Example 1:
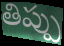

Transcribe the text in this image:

తిప్పు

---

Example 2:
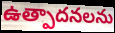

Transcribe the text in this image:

ఉత్పాదనలను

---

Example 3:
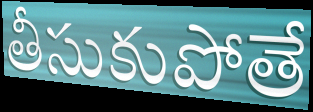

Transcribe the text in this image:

తీసుకుపోతే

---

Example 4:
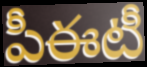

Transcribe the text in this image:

పీఈటీ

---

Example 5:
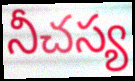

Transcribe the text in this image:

నీచస్య